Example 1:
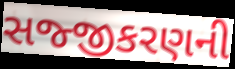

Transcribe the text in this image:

સજ્જીકરણની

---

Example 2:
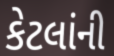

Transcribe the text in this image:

કેટલાંની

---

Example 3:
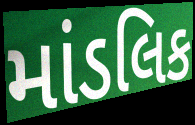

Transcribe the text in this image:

માંડલિક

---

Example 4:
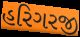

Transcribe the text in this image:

હરિગરજી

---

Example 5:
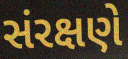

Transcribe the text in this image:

સંરક્ષણે